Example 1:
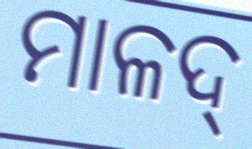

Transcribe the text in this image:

ମାଳଦ୍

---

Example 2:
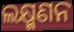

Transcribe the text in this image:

ଲକ୍ଷ୍ମଣନ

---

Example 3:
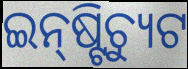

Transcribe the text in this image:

ଇନ୍‍ଷ୍ଟିଚ୍ୟୁଟ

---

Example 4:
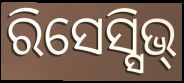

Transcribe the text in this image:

ରିସେସ୍ସିଭ୍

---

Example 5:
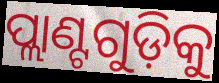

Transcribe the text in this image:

ପ୍ଲାଣ୍ଟଗୁଡ଼ିକୁ